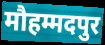
मौहम्मदपुर